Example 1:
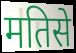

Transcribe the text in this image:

मतिसे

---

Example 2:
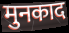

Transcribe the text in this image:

मुनकाद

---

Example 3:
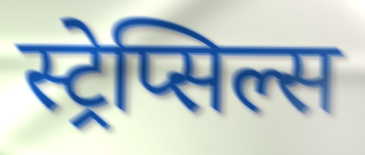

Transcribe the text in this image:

स्ट्रेप्सिल्स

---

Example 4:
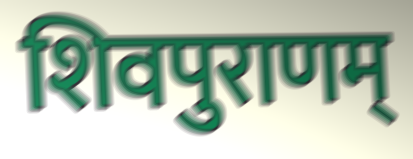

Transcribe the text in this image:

शिवपुराणम्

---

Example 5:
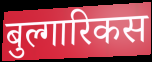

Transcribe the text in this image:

बुल्गारिकस